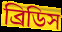
ব্রিডিস